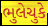
ભુલેચુકે